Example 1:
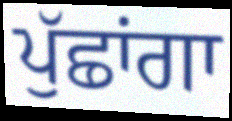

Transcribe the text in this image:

ਪੁੱਛਾਂਗਾ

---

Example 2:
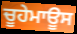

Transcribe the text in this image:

ਚੂਹੇਮਾਊਸ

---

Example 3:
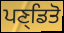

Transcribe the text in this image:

ਪਣ੍ਡਿਤੋ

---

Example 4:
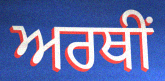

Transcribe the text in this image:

ਅਰਥੀਂ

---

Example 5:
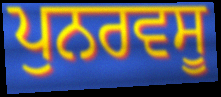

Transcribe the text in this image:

ਪੁਨਰਵਸੂ